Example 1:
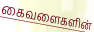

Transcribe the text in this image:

கைவளைகளின்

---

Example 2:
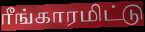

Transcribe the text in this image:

ரீங்காரமிட்டு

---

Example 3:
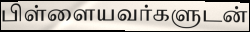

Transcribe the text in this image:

பிள்ளையவர்களுடன்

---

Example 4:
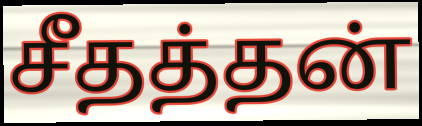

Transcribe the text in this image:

சீதத்தன்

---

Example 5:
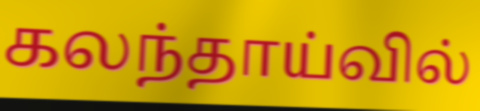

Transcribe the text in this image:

கலந்தாய்வில்